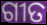
ଗୀତ